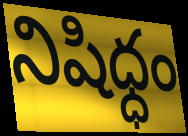
నిషిధ్ధం